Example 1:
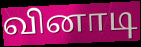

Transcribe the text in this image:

வினாடி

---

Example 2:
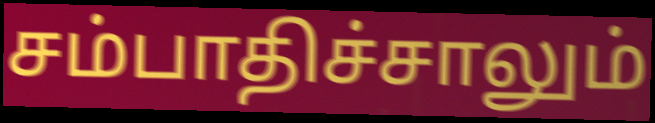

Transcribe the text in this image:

சம்பாதிச்சாலும்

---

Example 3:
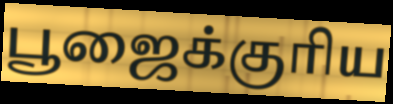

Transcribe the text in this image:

பூஜைக்குரிய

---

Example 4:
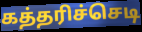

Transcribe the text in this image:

கத்தரிச்செடி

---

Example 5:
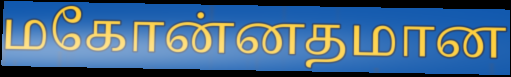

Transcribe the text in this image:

மகோன்னதமான